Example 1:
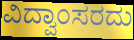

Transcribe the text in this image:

ವಿದ್ವಾಂಸರದು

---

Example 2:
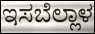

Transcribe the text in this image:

ಇಸಬೆಲ್ಲಾಳ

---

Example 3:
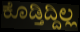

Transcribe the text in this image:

ಕೊಡ್ತಿದ್ದಿಲ್ಲ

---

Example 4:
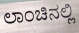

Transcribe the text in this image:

ಲಾಂಚಿನಲ್ಲಿ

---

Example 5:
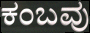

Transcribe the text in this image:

ಕಂಬವು